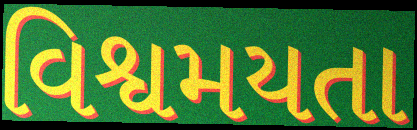
વિશ્વમયતા